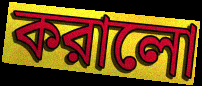
করালো